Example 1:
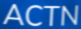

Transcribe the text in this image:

ACTN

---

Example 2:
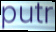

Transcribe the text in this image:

putr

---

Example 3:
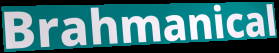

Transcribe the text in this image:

Brahmanical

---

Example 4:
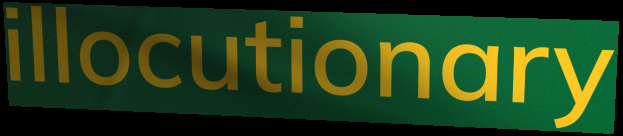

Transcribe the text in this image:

illocutionary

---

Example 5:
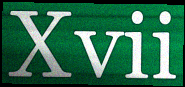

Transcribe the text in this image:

Xvii